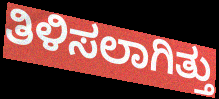
ತಿಳಿಸಲಾಗಿತ್ತು